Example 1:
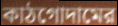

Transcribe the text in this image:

কাঠগোদামের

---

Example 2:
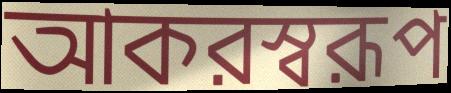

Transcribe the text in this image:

আকরস্বরূপ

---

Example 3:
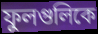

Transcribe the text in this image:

ফুলগুলিকে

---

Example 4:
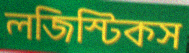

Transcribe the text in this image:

লজিস্টিকস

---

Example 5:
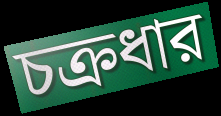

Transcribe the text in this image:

চক্রধার